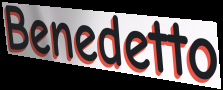
Benedetto